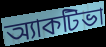
অ্যাকটিভা